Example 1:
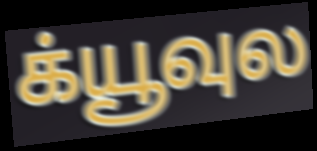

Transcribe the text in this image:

க்யூவுல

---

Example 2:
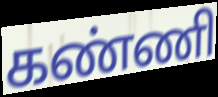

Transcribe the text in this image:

கண்ணி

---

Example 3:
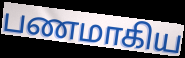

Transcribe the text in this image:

பணமாகிய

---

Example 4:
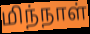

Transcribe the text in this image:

மிந்நாள்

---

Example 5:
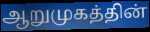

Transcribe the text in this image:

ஆறுமுகத்தின்